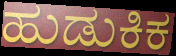
ಹುಡುಕಿಕ